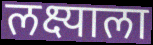
लक्ष्याला